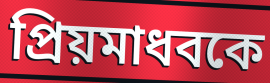
প্রিয়মাধবকে